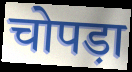
चोपड़ा